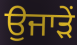
ਉਜਾੜੇਂ